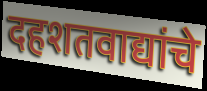
दहशतवाद्यांचे